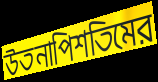
উতনাপিশতিমের